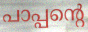
പാപ്പന്റെ